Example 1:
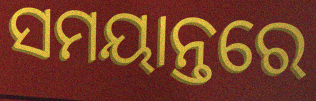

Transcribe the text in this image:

ସମୟାନ୍ତରେ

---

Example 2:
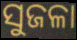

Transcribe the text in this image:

ସୁଜଳା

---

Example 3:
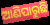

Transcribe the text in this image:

ଆଣିପାରୁଛି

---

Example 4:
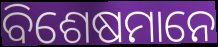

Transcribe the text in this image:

ବିଶେଷମାନେ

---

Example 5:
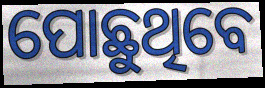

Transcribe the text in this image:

ପୋଛୁଥିବେ